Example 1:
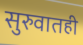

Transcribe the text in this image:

सुरुवातही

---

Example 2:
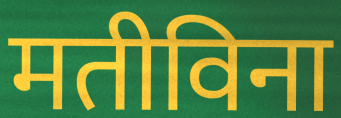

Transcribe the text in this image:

मतीविना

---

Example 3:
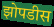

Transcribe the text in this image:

झोपडीस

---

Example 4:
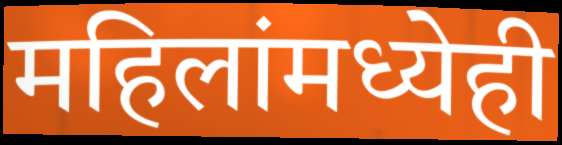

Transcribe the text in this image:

महिलांमध्येही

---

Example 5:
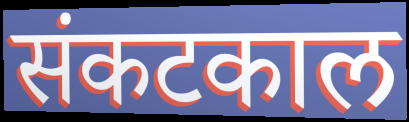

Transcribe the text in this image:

संकटकाल